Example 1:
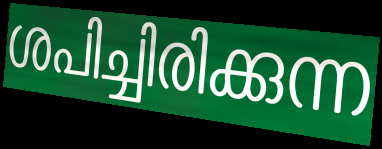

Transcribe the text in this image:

ശപിച്ചിരിക്കുന്ന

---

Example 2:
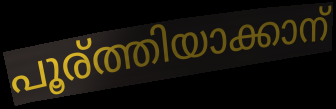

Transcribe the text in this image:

പൂര്ത്തിയാക്കാന്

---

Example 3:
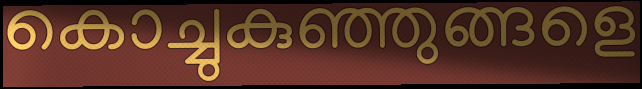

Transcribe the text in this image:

കൊച്ചുകുഞ്ഞുങ്ങളെ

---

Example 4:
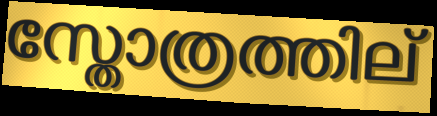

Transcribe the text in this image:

സ്തോത്രത്തില്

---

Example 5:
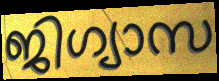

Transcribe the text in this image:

ജിഗ്യാസ